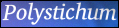
Polystichum